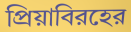
প্রিয়াবিরহের